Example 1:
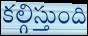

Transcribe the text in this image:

కల్గిస్తుంది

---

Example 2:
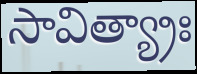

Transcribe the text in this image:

సావిత్య్రాః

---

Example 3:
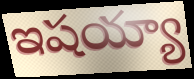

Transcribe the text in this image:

ఇషయ్యా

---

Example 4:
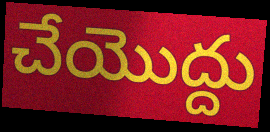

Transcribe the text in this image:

చేయొద్దు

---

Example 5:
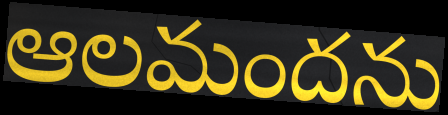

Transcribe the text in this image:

ఆలమందను